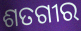
ଶତଗୀର